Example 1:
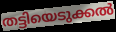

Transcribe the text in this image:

തട്ടിയെടുക്കൽ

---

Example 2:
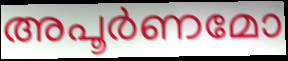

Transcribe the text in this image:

അപൂർണമോ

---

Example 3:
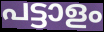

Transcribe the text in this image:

പട്ടാളം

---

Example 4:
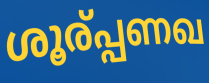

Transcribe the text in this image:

ശൂര്പ്പണഖ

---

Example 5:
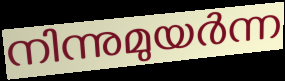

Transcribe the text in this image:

നിന്നുമുയർന്ന